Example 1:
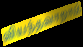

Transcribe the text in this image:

வியந்தவாறாம்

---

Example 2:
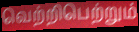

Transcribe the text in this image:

வெற்றிபெற்றும்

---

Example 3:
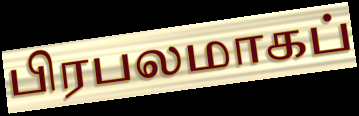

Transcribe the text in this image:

பிரபலமாகப்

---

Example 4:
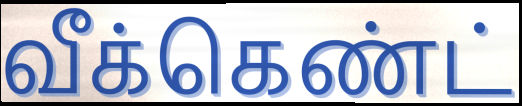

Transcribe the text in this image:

வீக்கெண்ட்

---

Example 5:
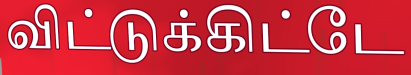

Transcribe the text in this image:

விட்டுக்கிட்டே